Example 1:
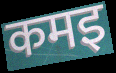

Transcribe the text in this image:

कमइ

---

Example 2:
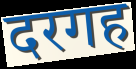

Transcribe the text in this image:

दरगह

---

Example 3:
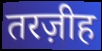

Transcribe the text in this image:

तरज़ीह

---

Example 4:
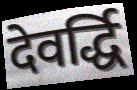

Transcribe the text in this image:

देवर्द्धि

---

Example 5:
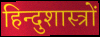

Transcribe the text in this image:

हिन्दुशास्त्रों